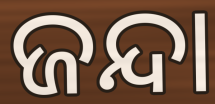
ଜନ୍ଦା